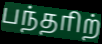
பந்தரிற்